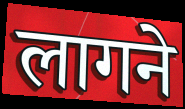
लागने